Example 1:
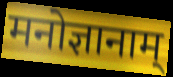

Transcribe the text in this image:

मनोज्ञानाम्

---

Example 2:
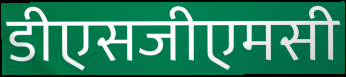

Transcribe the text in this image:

डीएसजीएमसी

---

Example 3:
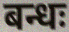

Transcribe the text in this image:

बन्धः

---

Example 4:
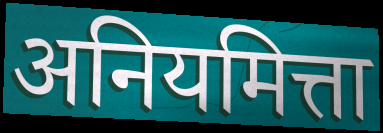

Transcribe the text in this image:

अनियमित्ता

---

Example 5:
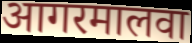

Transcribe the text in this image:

आगरमालवा